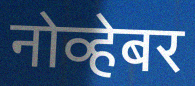
नोव्हेबर